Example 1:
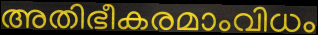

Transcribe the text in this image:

അതിഭീകരമാംവിധം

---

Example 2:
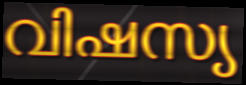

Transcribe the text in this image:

വിഷസ്യ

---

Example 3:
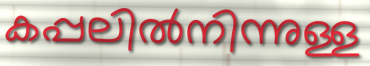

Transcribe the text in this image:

കപ്പലിൽനിന്നുള്ള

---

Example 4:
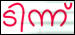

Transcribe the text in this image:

ടിന്ന്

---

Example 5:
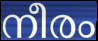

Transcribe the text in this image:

നീരം